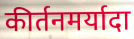
कीर्तनमर्यादा